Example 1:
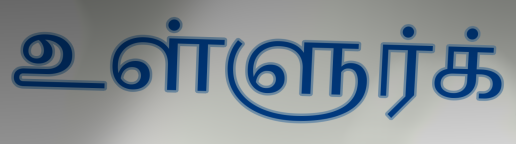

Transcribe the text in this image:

உள்ளுர்க்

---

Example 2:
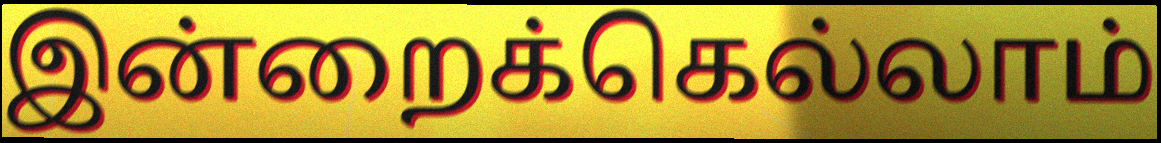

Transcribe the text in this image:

இன்றைக்கெல்லாம்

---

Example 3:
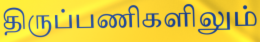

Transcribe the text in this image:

திருப்பணிகளிலும்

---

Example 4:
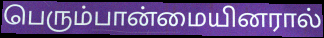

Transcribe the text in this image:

பெரும்பான்மையினரால்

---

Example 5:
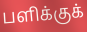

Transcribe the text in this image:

பளிக்குக்